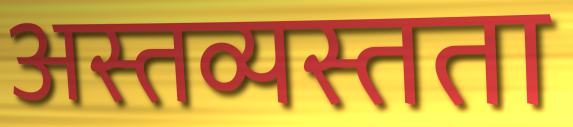
अस्तव्यस्तता